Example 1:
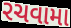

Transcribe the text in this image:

રચવામા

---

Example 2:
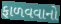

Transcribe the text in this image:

ફાળવવાનો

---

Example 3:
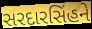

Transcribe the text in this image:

સરદારસિંહને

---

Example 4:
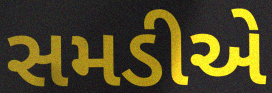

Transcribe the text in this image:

સમડીએ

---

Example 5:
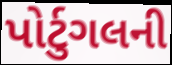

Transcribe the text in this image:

પોર્ટુગલની